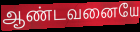
ஆண்டவனையே